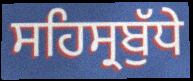
ਸਹਿਸ੍ਰਬੁੱਧੇ